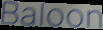
Baloon